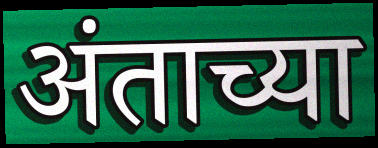
अंताच्या